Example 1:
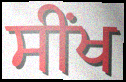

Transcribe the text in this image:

ਸੀਂਖ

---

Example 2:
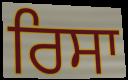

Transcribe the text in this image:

ਰਿਸਾ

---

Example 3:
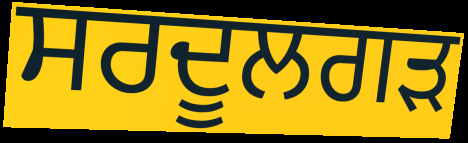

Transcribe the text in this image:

ਸਰਦੂਲਗੜ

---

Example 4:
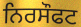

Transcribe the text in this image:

ਨਿਰਸੌਫਟ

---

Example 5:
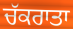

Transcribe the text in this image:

ਚੱਕਰਾਤਾ